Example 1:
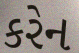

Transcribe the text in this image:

કરેન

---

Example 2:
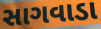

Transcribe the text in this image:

સાગવાડા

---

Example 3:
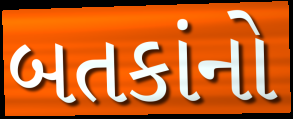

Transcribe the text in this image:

બતકાંનો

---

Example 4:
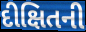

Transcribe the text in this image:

દીક્ષિતની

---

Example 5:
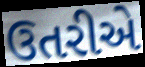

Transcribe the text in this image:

ઉતરીએ